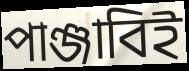
পাঞ্জাবিই